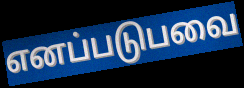
எனப்படுபவை